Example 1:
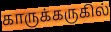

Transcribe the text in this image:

காருக்கருகில்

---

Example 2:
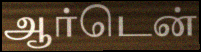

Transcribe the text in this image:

ஆர்டென்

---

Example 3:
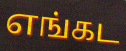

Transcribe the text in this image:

எங்கட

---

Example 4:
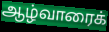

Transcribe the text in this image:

ஆழ்வாரைக்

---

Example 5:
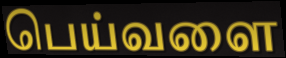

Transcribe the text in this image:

பெய்வளை